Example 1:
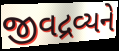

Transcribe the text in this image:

જીવદ્રવ્યને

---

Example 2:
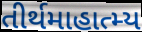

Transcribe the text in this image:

તીર્થમાહાત્મ્ય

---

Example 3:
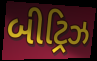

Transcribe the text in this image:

બીટ્રિઝ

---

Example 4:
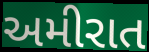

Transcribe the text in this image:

અમીરાત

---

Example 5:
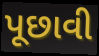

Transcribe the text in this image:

પૂછાવી